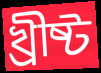
খ্রীষ্ট